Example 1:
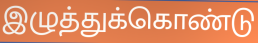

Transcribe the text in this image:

இழுத்துக்கொண்டு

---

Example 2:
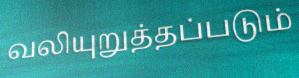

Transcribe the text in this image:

வலியுறுத்தப்படும்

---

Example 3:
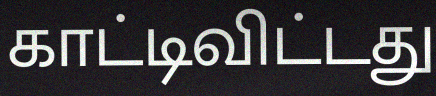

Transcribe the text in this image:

காட்டிவிட்டது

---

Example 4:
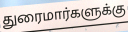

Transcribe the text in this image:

துரைமார்களுக்கு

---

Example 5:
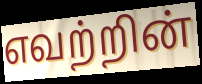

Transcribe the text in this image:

எவற்றின்